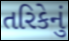
તરિકેનું